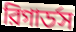
রিগার্ডস